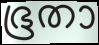
ഭൂതാ